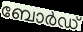
ബോർഡ്